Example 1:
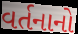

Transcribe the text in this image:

વર્તનાનો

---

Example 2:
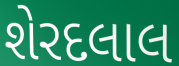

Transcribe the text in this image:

શેરદલાલ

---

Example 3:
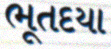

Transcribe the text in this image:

ભૂતદયા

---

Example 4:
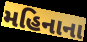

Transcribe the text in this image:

મહિનાના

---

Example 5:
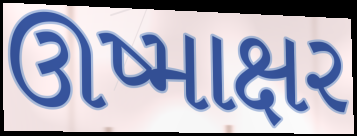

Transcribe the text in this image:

ઊષ્માક્ષર